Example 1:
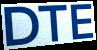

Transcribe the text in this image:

DTE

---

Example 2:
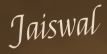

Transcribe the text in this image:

Jaiswal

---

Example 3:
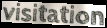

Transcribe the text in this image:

visitation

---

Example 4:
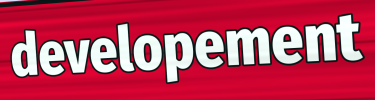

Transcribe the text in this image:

developement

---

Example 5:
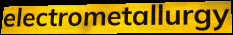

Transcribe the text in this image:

electrometallurgy